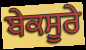
ਬੇਕਸੂਰੇ